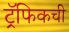
ट्रॅफिकची